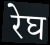
रेघ